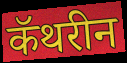
कॅथरीन